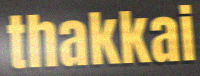
thakkai